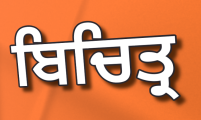
ਬਿਚਿਤ੍ਰ